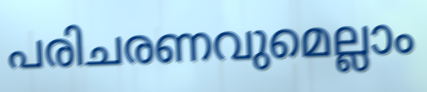
പരിചരണവുമെല്ലാം